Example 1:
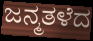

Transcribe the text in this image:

ಜನ್ಮತಳೆದ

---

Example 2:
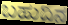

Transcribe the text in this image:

ಬಹುದಿನ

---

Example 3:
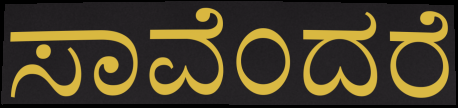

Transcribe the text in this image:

ಸಾವೆಂದರೆ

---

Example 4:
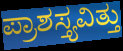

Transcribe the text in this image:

ಪ್ರಾಶಸ್ತ್ಯವಿತ್ತು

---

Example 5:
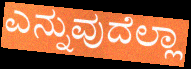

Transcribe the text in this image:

ಎನ್ನುವುದೆಲ್ಲಾ